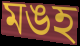
মঙহ